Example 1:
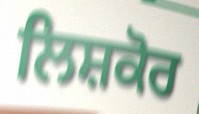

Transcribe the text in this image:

ਲਿਸ਼ਕੋਰ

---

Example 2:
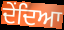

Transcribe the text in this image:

ਦੇਂਦਿਆ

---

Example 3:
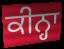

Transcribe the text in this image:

ਕੀਨ੍ਹ੍ਹਾ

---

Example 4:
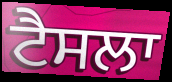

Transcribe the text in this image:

ਟੈਸਲਾ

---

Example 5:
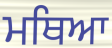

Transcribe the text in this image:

ਮਥਿਆ